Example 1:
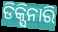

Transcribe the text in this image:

ଡିକ୍ସିନାରି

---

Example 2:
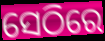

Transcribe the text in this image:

ସେଠିରେ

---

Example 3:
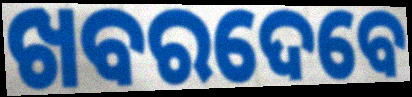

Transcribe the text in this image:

ଖବରଦେବେ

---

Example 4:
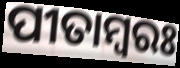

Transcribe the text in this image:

ପୀତାମ୍ୱରଃ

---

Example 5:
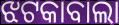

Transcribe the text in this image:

ଝଟକାବାଲା